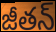
జీతన్